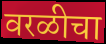
वरळीचा